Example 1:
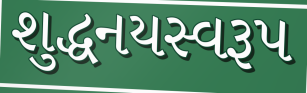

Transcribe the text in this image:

શુદ્ધનયસ્વરૂપ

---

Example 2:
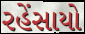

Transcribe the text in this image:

રહેંસાયો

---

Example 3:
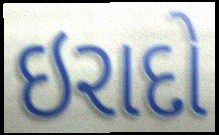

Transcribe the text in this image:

ઇરાદો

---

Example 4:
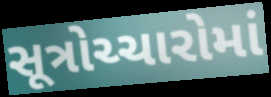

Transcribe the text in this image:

સૂત્રોચ્ચારોમાં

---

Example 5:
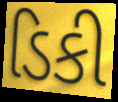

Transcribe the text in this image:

ડિકી